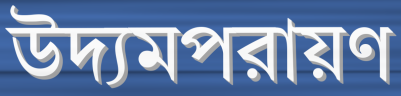
উদ্যমপরায়ণ